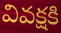
వివక్షకి